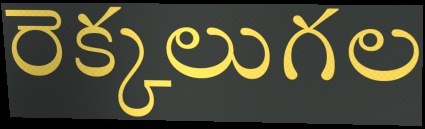
రెక్కలుగల